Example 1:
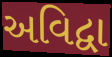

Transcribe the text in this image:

અવિદ્વા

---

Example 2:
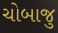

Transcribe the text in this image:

ચોબાજુ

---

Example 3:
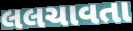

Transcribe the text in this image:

લલચાવતા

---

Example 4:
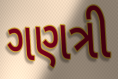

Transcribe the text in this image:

ગણત્રી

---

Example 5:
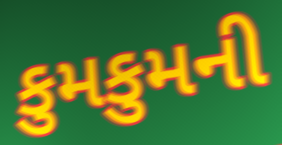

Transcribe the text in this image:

કુમકુમની